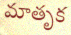
మాతృక